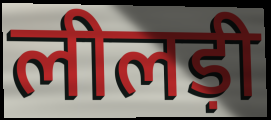
लीलड़ी